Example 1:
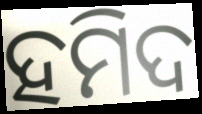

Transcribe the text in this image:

ହମିଦ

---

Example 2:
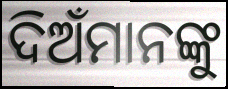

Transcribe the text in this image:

ଦିଅଁମାନଙ୍କୁ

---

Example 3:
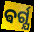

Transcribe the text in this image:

ଵର୍ଗ୍ଯ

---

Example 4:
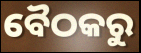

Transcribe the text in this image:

ବୈଠକରୁ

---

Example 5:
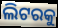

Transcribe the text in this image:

ଲିଟରକୁ